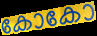
കോകോ